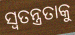
ସ୍ୱତନ୍ତ୍ରତାକୁ